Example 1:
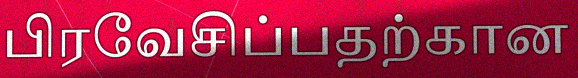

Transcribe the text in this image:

பிரவேசிப்பதற்கான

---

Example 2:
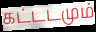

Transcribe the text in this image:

கட்டடமும்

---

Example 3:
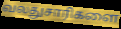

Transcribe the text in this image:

வலதுசாரிகளை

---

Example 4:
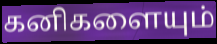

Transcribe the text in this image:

கனிகளையும்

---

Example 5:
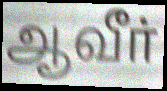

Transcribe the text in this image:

ஆவீர்